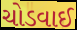
ચોડવાઈ